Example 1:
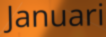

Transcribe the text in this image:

Januari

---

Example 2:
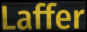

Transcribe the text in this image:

Laffer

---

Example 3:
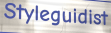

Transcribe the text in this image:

Styleguidist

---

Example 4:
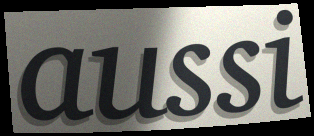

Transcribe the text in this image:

aussi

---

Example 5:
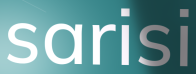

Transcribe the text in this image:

sarisi